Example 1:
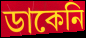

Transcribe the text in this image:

ডাকেনি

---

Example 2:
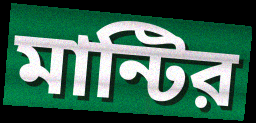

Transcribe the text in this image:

মান্টির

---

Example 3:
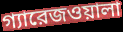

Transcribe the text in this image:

গ্যারেজওয়ালা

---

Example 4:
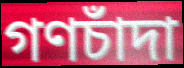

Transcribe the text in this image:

গণচাঁদা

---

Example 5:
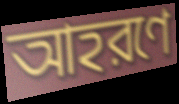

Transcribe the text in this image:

আহরণে